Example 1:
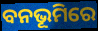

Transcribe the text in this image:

ବନଭୂମିରେ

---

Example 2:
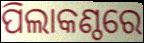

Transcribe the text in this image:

ପିଲାକଣ୍ଠରେ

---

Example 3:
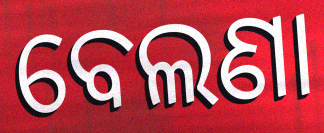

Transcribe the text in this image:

ବେଲଣା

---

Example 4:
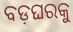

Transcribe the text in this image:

ବଡ଼ଘରକୁ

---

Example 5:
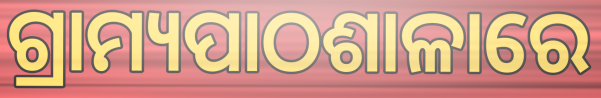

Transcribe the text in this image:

ଗ୍ରାମ୍ୟପାଠଶାଳାରେ